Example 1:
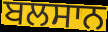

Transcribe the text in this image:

ਬਲਸਾਨ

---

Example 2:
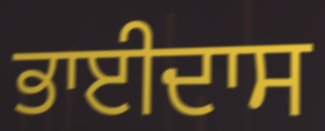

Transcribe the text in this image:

ਭਾਈਦਾਸ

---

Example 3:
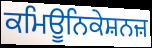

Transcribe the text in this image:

ਕਮਿਊਨਿਕੇਸ਼ਨਜ਼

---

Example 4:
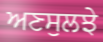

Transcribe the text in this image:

ਅਣਸੁਲਝੇ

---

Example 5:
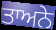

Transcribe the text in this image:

ਤਾਅਨੇ